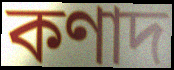
কণাদ